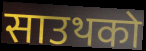
साउथको